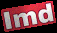
Imd